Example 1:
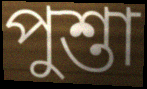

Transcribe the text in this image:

পুশ্তা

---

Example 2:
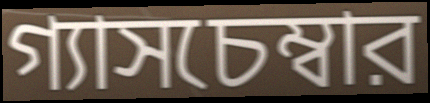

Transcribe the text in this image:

গ্যাসচেম্বার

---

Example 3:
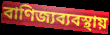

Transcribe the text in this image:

বাণিজ্যব্যবস্থায়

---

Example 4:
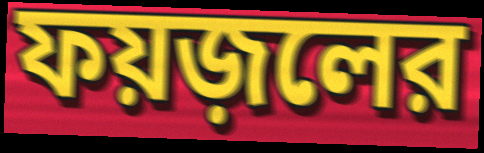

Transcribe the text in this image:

ফয়জ়লের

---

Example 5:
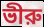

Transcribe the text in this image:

ভীরু